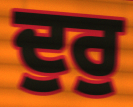
ਦੁਰੁ